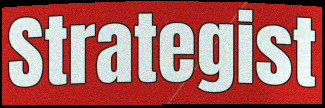
Strategist